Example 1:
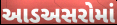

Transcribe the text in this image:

આડઅસરોમાં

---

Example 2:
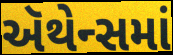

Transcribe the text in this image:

ઍથેન્સમાં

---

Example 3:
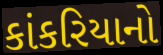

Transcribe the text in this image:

કાંકરિયાનો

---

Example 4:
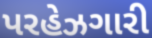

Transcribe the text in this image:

પરહેઝગારી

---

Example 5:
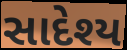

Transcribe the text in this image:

સાદેશ્ય